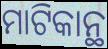
ମାଟିକାନ୍ଥ